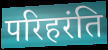
परिहरंति